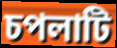
চপলাটি